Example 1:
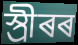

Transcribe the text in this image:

স্ত্ৰীৰৰ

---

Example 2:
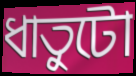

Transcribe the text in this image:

ধাতুটো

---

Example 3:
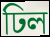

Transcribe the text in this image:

ঢিল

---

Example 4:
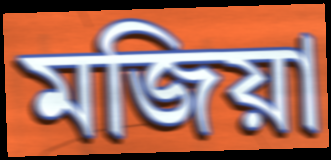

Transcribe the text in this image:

মজিয়া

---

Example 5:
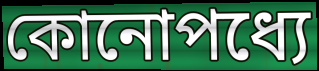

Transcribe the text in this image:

কোনোপধ্যে